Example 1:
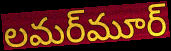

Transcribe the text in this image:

లమర్‌మూర్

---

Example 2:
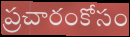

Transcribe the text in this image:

ప్రచారంకోసం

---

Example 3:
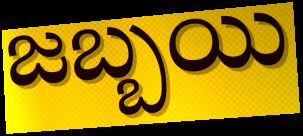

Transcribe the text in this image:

జబ్బయి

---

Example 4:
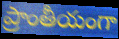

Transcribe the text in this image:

ప్రాంతీయంగా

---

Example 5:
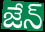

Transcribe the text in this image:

జేన్